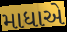
માધાએ